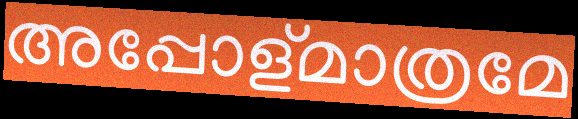
അപ്പോള്മാത്രമേ